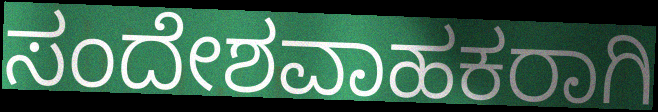
ಸಂದೇಶವಾಹಕರಾಗಿ